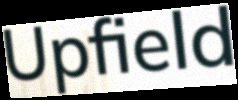
Upfield